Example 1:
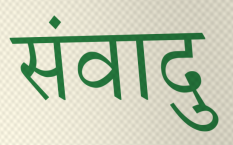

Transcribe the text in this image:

संवादु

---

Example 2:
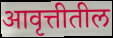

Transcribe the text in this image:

आवृत्तीतील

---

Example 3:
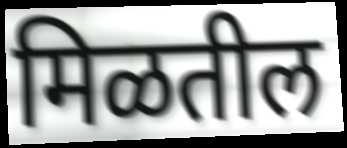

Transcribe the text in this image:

मिळतील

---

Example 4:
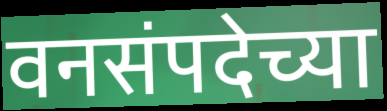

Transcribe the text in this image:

वनसंपदेच्या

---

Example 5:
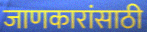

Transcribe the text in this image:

जाणकारांसाठी